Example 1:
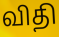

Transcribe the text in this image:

விதி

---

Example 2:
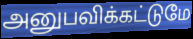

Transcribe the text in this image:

அனுபவிக்கட்டுமே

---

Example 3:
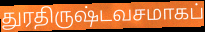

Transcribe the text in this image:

துரதிருஷ்டவசமாகப்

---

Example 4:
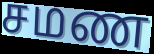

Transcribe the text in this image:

சமண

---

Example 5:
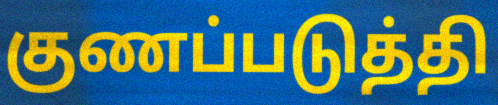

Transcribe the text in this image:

குணப்படுத்தி